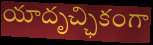
యాదృచ్ఛికంగా